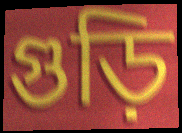
গুড়ি